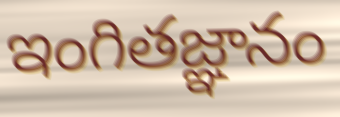
ఇంగితజ్ఞానం